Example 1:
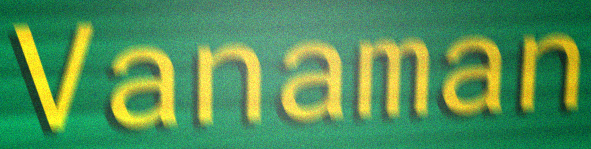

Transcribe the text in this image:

Vanaman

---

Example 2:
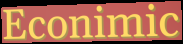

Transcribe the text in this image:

Econimic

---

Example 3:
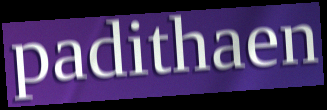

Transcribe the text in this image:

padithaen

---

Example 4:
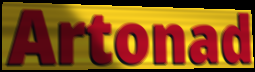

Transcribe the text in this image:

Artonad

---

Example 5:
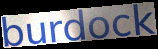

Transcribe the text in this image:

burdock